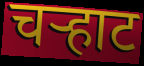
चऱ्हाट